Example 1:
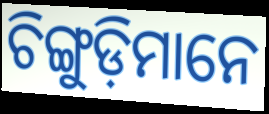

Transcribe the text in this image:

ଚିଙ୍ଗୁଡ଼ିମାନେ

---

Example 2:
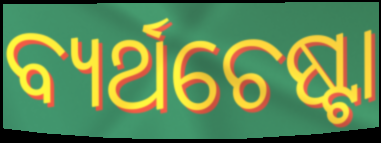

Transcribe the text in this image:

ବ୍ୟର୍ଥଚେଷ୍ଟା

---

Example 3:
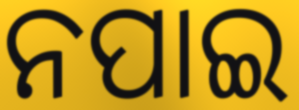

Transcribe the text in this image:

ନପାଇ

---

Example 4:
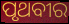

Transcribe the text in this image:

ପୃଥବୀର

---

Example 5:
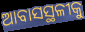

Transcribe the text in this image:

ଆବାସସ୍ଥଳୀକୁ